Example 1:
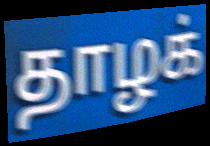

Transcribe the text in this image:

தாழக்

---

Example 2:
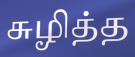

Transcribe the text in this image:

சுழித்த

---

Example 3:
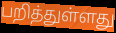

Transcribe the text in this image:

பறித்துள்ளது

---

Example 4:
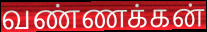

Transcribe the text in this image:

வண்ணக்கன்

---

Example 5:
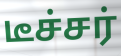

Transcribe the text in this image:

டீச்சர்